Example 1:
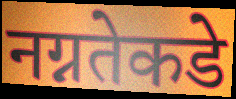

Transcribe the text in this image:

नग्नतेकडे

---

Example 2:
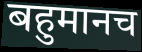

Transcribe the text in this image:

बहुमानच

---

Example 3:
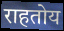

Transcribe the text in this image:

राहतोय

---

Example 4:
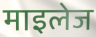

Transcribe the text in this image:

माइलेज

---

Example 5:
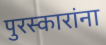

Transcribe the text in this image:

पुरस्कारांना